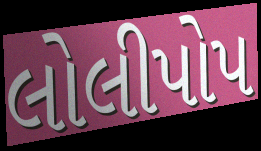
લોલીપોપ